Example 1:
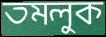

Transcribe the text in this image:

তমলুক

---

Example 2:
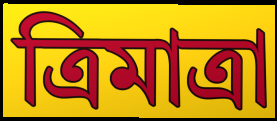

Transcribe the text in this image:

ত্রিমাত্রা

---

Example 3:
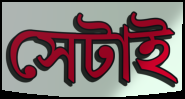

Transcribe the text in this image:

সেটাই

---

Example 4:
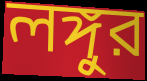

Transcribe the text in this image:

লঙ্গুর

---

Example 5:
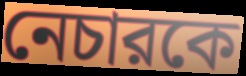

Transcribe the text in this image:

নেচারকে